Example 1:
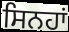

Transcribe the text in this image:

ਸਿਨਹਾਂ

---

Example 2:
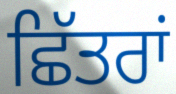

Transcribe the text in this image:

ਛਿੱਤਰਾਂ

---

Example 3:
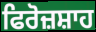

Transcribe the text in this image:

ਫਿਰੋਜ਼ਸ਼ਾਹ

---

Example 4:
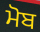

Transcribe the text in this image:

ਮੋਬ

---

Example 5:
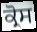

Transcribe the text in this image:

ਕ੍ਰੋਸ